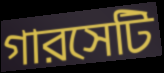
গারসেটি